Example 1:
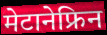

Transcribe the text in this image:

मेटानेफ्रिन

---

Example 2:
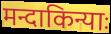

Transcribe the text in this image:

मन्दाकिन्याः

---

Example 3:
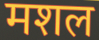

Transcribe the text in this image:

मशल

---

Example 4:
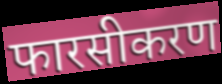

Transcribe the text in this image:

फारसीकरण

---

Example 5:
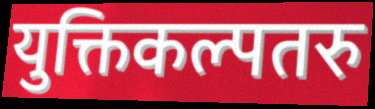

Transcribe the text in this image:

युक्तिकल्पतरु